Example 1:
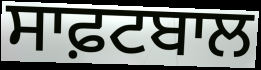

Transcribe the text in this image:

ਸਾਫ਼ਟਬਾਲ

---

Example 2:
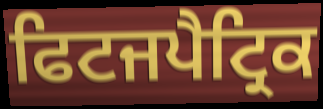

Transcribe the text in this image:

ਫਿਟਜਪੈਟ੍ਰਿਕ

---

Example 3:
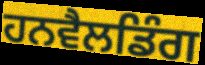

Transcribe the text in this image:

ਹਨਵੈਲਡਿੰਗ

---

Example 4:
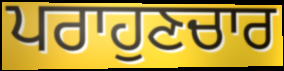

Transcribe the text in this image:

ਪਰਾਹੁਣਚਾਰ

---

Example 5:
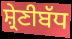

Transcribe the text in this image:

ਸ਼੍ਰੇਣੀਬੱਧ